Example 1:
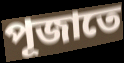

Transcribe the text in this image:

পূজাতে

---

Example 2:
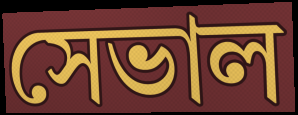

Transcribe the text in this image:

সেভাল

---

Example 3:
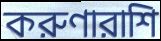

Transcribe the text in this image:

করুণারাশি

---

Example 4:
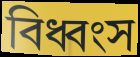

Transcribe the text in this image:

বিধ্বংস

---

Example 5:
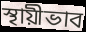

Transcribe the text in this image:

স্থায়ীভাব